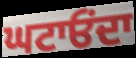
ਘਟਾਓਂਦਾ